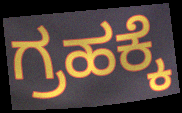
ಗ್ರಹಕ್ಕೆ